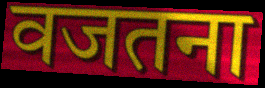
वजतना